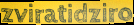
zviratidziro